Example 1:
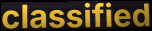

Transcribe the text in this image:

classified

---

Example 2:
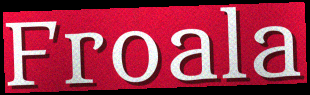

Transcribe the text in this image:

Froala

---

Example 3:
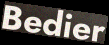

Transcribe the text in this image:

Bedier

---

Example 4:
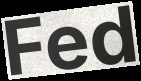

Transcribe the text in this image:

Fed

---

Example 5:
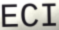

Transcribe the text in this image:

ECI